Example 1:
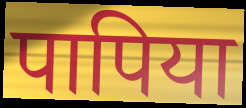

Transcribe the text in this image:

पापिया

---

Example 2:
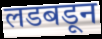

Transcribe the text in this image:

लडबडून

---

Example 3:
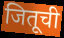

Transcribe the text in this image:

जितूची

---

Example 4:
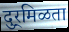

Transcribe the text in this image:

दुर्मिळता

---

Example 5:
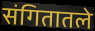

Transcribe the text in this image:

संगितातले